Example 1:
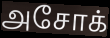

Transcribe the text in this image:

அசோக்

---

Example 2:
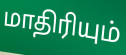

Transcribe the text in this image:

மாதிரியும்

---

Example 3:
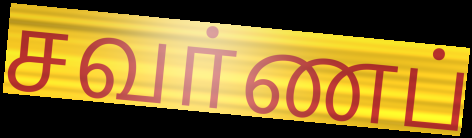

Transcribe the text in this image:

சவர்ணப்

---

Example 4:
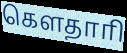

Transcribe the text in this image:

கௌதாரி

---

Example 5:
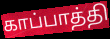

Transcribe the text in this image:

காப்பாத்தி